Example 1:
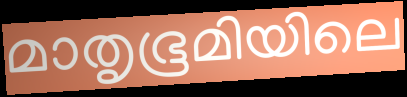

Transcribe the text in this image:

മാതൃഭൂമിയിലെ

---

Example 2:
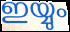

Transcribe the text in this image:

ഇയ്യും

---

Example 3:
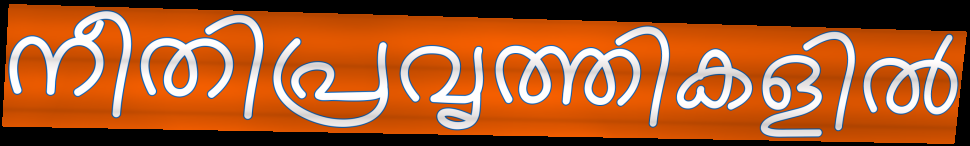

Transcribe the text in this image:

നീതിപ്രവൃത്തികളിൽ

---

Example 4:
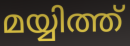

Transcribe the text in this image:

മയ്യിത്ത്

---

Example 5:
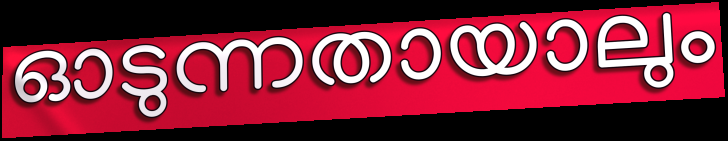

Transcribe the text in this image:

ഓടുന്നതായാലും